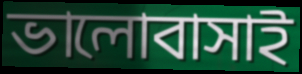
ভালোবাসাই